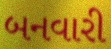
બનવારી